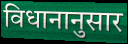
विधानानुसार